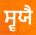
ਸ੍ਵਯੈ